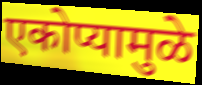
एकोप्यामुळे